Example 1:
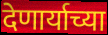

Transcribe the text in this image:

देणार्याच्या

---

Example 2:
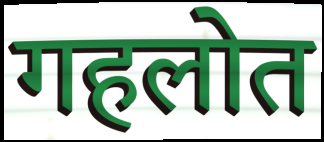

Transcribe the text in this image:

गहलोत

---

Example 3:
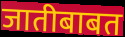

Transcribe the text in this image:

जातीबाबत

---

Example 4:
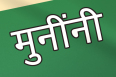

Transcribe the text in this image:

मुनींनी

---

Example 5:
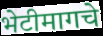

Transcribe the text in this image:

भेटीमागचे